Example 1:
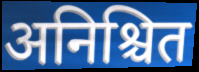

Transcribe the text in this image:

अनिश्चित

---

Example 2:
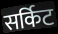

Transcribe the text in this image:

सर्किट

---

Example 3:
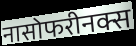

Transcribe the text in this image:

नासोफरीनक्स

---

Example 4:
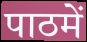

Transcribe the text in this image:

पाठमें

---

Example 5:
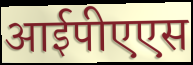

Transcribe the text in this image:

आईपीएएस